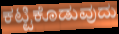
ಕಟ್ಟಿಕೊಡುವುದು